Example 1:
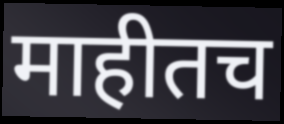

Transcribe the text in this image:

माहीतच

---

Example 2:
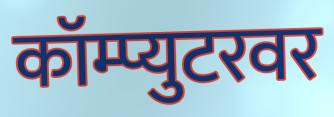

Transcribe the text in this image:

कॉम्प्युटरवर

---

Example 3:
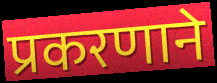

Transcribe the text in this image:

प्रकरणाने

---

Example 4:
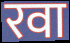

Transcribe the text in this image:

रवा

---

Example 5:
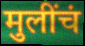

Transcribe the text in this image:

मुलींचं